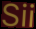
Sii